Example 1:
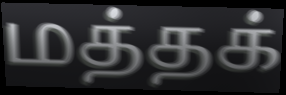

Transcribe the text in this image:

மத்தக்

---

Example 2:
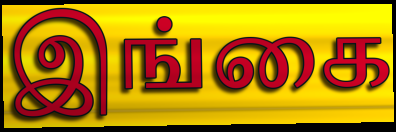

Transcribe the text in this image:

இங்கை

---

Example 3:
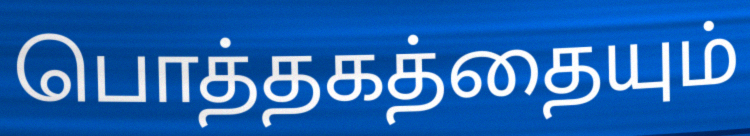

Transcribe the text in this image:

பொத்தகத்தையும்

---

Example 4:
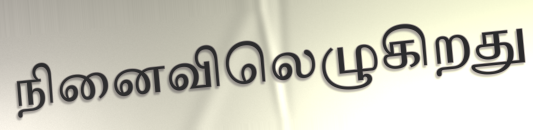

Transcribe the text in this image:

நினைவிலெழுகிறது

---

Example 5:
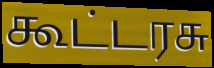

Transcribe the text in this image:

கூட்டரசு